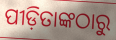
ପୀଡ଼ିତାଙ୍କଠାରୁ